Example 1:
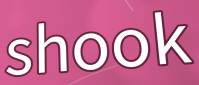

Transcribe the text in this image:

shook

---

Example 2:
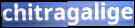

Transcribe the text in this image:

chitragalige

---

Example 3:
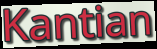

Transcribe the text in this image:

Kantian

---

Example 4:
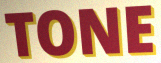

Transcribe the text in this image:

TONE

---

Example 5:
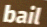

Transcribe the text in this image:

bail